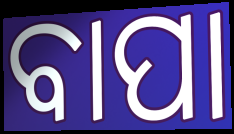
ବାପା